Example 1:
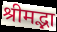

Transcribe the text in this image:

श्रीमद्भा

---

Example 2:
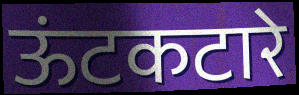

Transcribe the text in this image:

ऊंटकटारे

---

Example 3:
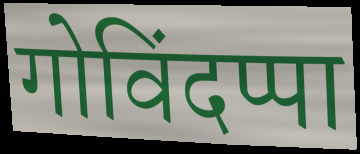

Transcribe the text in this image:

गोविंदप्पा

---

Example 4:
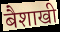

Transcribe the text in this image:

बैशाखी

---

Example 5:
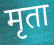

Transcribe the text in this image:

मृता